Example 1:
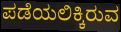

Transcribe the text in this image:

ಪಡೆಯಲಿಕ್ಕಿರುವ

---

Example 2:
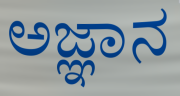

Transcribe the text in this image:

ಅಜ್ಞಾನ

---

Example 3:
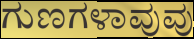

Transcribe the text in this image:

ಗುಣಗಳಾವುವು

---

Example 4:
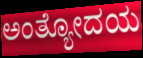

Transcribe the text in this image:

ಅಂತ್ಯೋದಯ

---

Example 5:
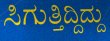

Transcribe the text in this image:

ಸಿಗುತ್ತಿದ್ದಿದ್ದು